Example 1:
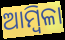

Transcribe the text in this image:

ଆମ୍ବିଳା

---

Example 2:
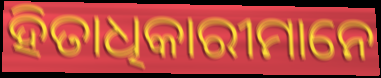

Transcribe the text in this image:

ହିତାଧିକାରୀମାନେ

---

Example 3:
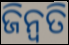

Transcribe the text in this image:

ଜିନ୍ୱତି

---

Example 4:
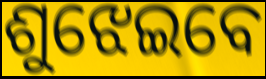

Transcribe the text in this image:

ଶୁଝେଇବେ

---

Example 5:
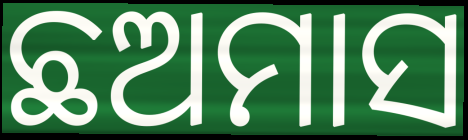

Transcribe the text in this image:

ଛଅମାସ